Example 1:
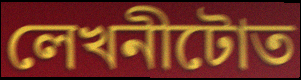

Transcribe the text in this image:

লেখনীটোত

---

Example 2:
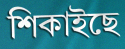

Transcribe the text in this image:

শিকাইছে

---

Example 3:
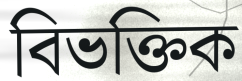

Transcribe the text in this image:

বিভক্তিক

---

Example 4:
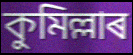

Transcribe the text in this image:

কুমিল্লাৰ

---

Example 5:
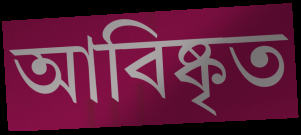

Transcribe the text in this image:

আবিষ্কৃত